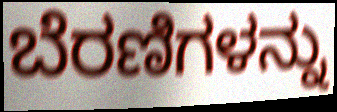
ಬೆರಣಿಗಳನ್ನು